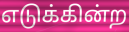
எடுக்கின்ற